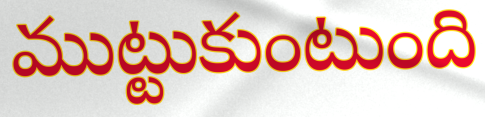
ముట్టుకుంటుంది